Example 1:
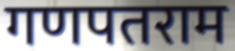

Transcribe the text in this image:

गणपतराम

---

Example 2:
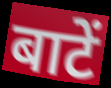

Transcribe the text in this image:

बाटें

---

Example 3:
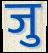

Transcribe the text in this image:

जु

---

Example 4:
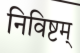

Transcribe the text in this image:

निविष्टम्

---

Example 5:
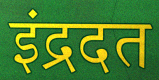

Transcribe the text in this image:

इंद्रदत